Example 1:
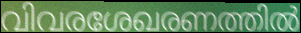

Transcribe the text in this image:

വിവരശേഖരണത്തിൽ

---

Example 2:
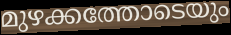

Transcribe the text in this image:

മുഴക്കത്തോടെയും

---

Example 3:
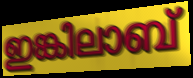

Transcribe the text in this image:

ഇങ്കിലാബ്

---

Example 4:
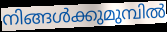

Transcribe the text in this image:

നിങ്ങൾക്കുമുമ്പിൽ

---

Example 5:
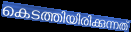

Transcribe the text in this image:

കെടത്തിയിരിക്കുന്നത്